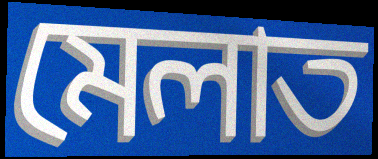
মেলাত